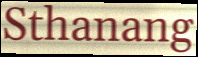
Sthanang